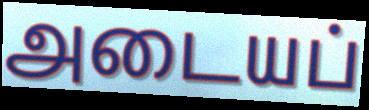
அடையப்